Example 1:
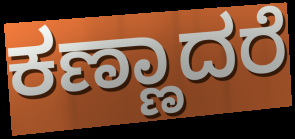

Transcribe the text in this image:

ಕಣ್ಣಾದರೆ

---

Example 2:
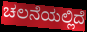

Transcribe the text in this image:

ಚಲನೆಯಲ್ಲಿದೆ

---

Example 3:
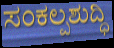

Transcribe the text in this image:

ಸಂಕಲ್ಪಶುದ್ಧಿ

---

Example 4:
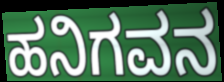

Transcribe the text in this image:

ಹನಿಗವನ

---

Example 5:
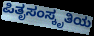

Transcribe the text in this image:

ಪಿತೃಸಂಸ್ಕೃತಿಯ